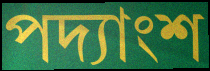
পদ্যাংশ